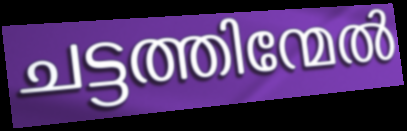
ചട്ടത്തിന്മേൽ